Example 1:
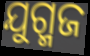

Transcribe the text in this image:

ଯୁଗ୍ମଜ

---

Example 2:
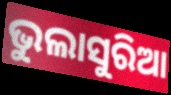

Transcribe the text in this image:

ଭୁଲାସୁରିଆ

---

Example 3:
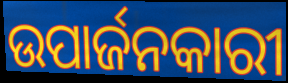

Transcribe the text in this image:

ଉପାର୍ଜନକାରୀ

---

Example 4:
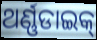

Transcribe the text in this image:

ଥର୍ଣ୍ଣଡାଇକ୍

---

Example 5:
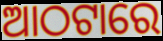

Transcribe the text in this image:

ଆଠଟାରେ